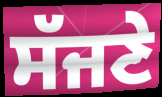
ਸੱਜਣੇ